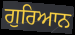
ਗੁਰਿਆਨ